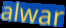
alwar